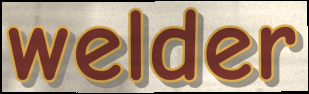
welder